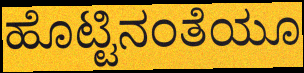
ಹೊಟ್ಟಿನಂತೆಯೂ